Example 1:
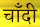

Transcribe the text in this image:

चाँदी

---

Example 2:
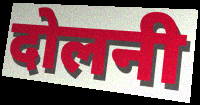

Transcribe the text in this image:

दोलनी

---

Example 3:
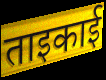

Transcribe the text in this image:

ताइकाई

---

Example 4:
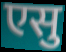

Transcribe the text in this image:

एसु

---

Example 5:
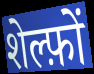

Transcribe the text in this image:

शेल्फ़ों